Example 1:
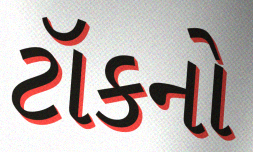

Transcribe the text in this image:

ટૉકનો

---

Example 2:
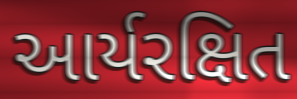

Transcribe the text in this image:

આર્યરક્ષિત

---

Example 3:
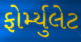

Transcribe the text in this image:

ફોર્મ્યુલેટ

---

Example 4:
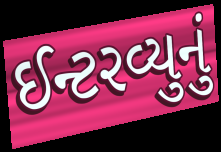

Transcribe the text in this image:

ઈન્ટરવ્યુનું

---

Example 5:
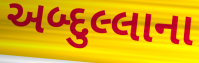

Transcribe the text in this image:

અબ્દુલ્લાના